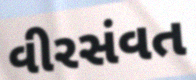
વીરસંવત